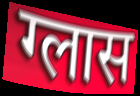
ग्लास